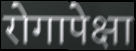
रोगापेक्षा